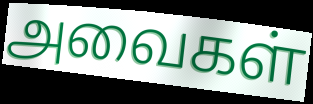
அவைகள்